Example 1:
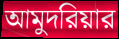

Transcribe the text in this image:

আমুদরিয়ার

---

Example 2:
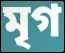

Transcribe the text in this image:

মৃগ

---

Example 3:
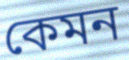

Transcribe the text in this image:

কেমন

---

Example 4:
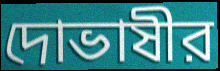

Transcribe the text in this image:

দোভাষীর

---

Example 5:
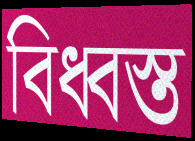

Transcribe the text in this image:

বিধ্বস্ত